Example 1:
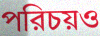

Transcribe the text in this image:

পরিচয়ও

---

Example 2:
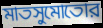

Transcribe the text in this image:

মাতসুমোতোর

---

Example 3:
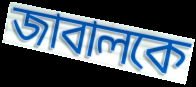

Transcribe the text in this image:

জাবালকে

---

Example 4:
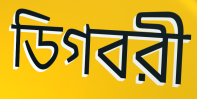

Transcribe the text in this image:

ডিগবরী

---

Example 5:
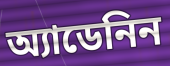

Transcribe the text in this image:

অ্যাডেনিন